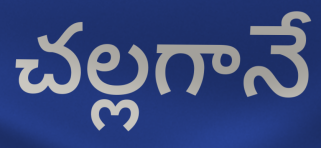
చల్లగానే